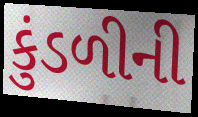
કુંડળીની